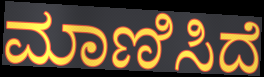
ಮಾಣಿಸಿದೆ